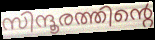
സിന്ദൂരത്തിന്റെ